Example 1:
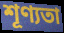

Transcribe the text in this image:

শূণ্যতা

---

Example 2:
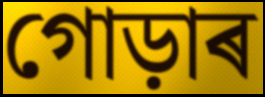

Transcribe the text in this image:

গোড়াৰ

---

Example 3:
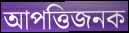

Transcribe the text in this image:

আপত্তিজনক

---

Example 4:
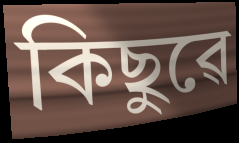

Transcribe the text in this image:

কিছুৱে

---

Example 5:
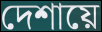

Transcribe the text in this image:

দেশায়ে